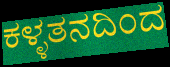
ಕಳ್ಳತನದಿಂದ